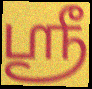
ஸ்ரீ